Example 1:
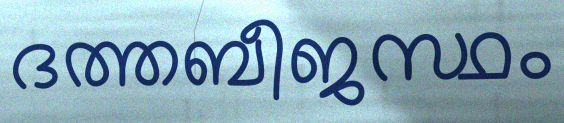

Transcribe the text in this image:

ദത്തബീജസ്ഥം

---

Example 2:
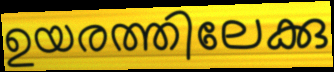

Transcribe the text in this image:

ഉയരത്തിലേക്കു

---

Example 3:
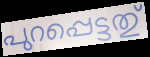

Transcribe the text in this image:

പുറപ്പെട്ടതു്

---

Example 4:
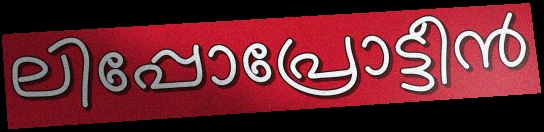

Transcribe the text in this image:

ലിപ്പോപ്രോട്ടീൻ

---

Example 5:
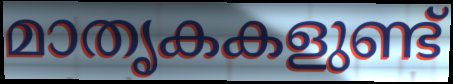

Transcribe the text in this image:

മാതൃകകളുണ്ട്